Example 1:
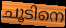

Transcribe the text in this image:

ചൂടിനെ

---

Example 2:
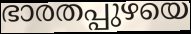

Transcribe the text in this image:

ഭാരതപ്പുഴയെ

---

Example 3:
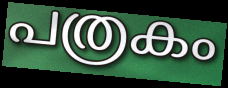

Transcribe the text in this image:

പത്രകം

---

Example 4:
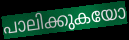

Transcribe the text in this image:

പാലിക്കുകയോ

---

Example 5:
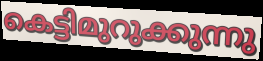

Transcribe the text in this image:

കെട്ടിമുറുക്കുന്നു